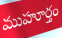
ముహూర్తం